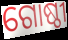
ଗୋଷ୍ଠୀ